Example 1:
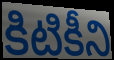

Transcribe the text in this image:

కిటికీని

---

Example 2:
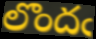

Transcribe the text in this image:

లొందఁ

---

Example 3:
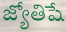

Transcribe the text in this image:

జ్యోతిషే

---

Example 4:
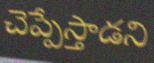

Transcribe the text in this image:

చెప్పేస్తాడని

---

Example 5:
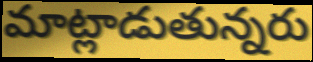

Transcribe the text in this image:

మాట్లాడుతున్నరు